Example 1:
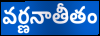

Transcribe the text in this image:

వర్ణనాతీతం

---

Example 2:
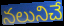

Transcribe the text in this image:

నలునిచే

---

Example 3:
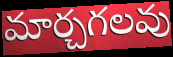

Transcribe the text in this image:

మార్చగలవు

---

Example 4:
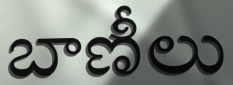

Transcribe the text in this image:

బాణీలు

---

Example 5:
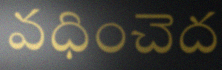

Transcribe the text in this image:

వధించెద